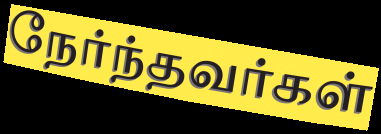
நேர்ந்தவர்கள்